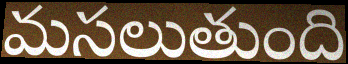
మసలుతుంది